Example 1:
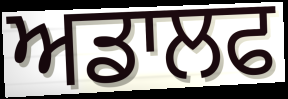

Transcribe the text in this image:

ਅਡਾਲਫ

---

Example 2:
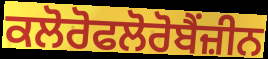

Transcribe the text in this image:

ਕਲੋਰੋਫਲੋਰੋਬੈਂਜ਼ੀਨ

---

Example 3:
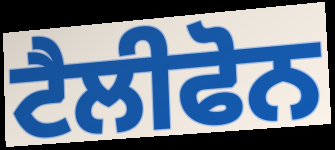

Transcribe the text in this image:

ਟੈਲੀਫੋਨ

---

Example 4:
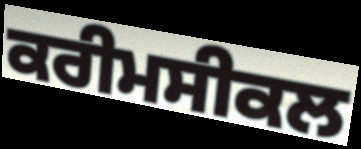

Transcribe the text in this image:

ਕਰੀਮਸੀਕਲ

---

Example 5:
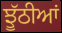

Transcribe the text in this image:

ਝੂੱਠੀਆਂ